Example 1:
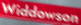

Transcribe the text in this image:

Widdowson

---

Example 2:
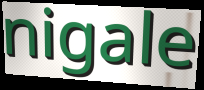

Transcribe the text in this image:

nigale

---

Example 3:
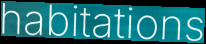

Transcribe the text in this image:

habitations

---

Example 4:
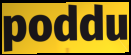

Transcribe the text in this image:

poddu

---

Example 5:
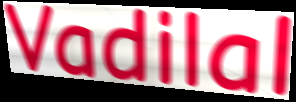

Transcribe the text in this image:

Vadilal